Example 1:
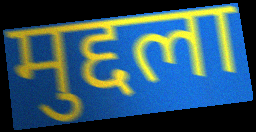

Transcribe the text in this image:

मुद्दला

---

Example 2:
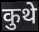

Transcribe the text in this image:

कुथे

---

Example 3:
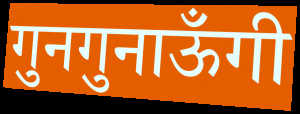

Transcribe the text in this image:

गुनगुनाऊँगी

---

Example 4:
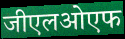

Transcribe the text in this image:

जीएलओएफ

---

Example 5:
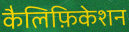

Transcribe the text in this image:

कैलिफ़िकेशन